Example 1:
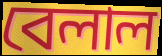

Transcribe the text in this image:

বেলাল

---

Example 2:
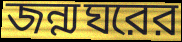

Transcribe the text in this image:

জন্মঘরের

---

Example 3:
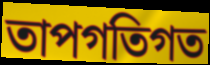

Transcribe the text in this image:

তাপগতিগত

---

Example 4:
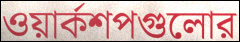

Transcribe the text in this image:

ওয়ার্কশপগুলোর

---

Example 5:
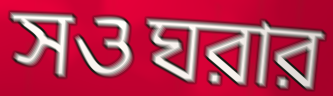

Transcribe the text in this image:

সওঘরার